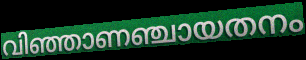
വിഞ്ഞാണഞ്ചായതനം